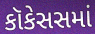
કૉકેસસમાં